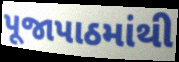
પૂજાપાઠમાંથી